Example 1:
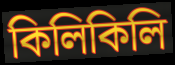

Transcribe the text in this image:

কিলিকিলি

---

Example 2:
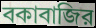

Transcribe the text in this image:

বকাবাজির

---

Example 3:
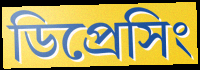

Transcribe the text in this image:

ডিপ্রেসিং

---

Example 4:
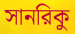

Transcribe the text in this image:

সানরিকু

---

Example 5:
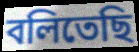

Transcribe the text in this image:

বলিতেছি